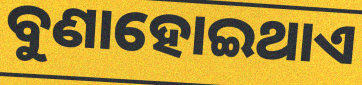
ବୁଣାହୋଇଥାଏ